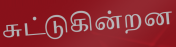
சுட்டுகின்றன